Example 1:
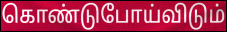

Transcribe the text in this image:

கொண்டுபோய்விடும்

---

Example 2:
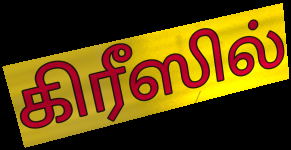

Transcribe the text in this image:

கிரீஸில்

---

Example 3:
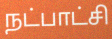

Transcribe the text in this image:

நட்பாட்சி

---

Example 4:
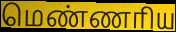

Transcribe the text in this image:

மெண்ணரிய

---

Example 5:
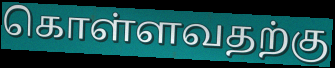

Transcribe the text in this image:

கொள்ளவதற்கு